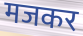
मजकर